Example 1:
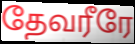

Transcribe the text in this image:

தேவரீரே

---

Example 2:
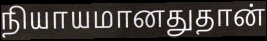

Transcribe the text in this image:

நியாயமானதுதான்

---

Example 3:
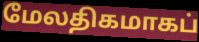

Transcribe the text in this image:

மேலதிகமாகப்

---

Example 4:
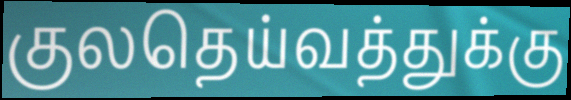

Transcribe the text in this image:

குலதெய்வத்துக்கு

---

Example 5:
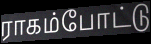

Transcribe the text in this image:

ராகம்போட்டு